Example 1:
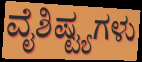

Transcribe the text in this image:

ವೈಶಿಷ್ಟ್ಯಗಳು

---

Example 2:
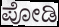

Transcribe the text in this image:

ಪೋಡಿ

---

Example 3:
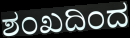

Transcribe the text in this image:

ಶಂಖದಿಂದ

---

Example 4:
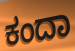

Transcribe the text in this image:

ಕಂದಾ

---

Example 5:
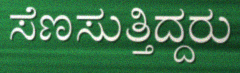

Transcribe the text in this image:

ಸೆಣಸುತ್ತಿದ್ದರು